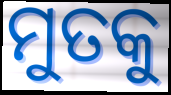
ମୁତକୁ